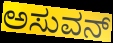
ಅಸುವನ್